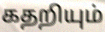
கதறியும்